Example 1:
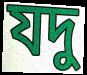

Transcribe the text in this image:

যদু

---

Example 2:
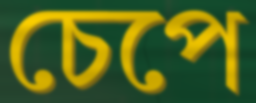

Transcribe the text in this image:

চেপে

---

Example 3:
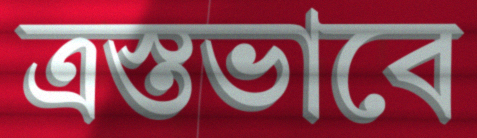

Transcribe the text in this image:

ত্রস্তভাবে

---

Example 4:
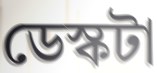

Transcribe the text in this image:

ডেস্কটা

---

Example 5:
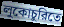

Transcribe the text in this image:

লুকোচুরিতে